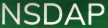
NSDAP